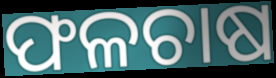
ଫଳଚାଷ